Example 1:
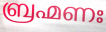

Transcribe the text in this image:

ബ്രഹ്മണഃ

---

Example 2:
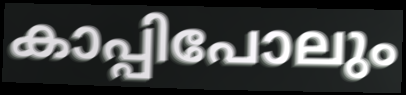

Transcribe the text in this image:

കാപ്പിപോലും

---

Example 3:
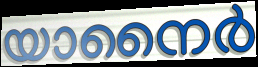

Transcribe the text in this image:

യാനൈർ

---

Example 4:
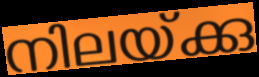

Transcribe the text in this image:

നിലയ്‌ക്കു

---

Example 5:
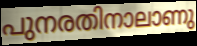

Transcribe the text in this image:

പുനരതിനാലാണു